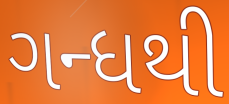
ગન્ધથી